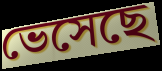
ভেসেছে